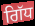
ਗਿੱਧ